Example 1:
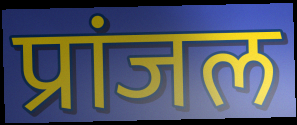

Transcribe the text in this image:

प्रांजल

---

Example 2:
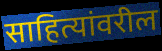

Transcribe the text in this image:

साहित्यांवरील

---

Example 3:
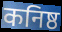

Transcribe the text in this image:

कनिष्ठ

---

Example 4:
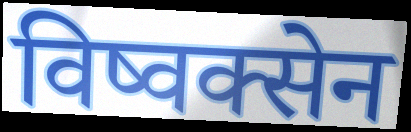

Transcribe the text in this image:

विष्वक्सेन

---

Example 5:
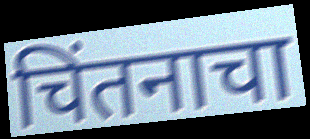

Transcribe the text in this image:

चिंतनाचा